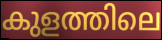
കുളത്തിലെ